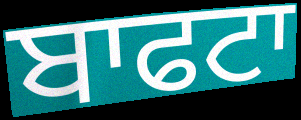
ਬਾਫਟਾ